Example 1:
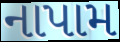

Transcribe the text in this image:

નાપામ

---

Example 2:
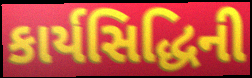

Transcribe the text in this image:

કાર્યસિદ્ધિની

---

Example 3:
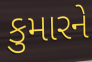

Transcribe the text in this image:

કુમારને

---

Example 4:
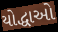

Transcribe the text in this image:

યોદ્ધાઓ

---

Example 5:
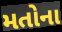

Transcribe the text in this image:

મતોના